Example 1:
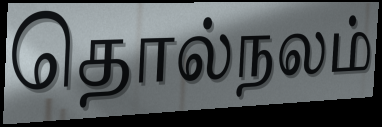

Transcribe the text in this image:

தொல்நலம்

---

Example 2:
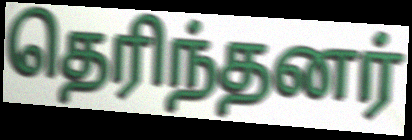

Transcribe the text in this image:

தெரிந்தனர்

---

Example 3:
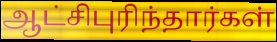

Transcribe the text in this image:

ஆட்சிபுரிந்தார்கள்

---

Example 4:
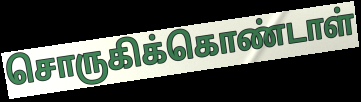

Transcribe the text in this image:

சொருகிக்கொண்டாள்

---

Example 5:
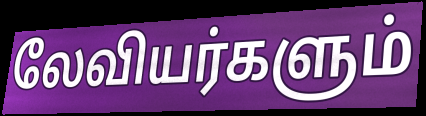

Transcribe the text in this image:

லேவியர்களும்